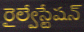
రైల్వేస్టేషన్